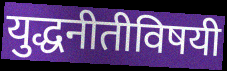
युद्धनीतीविषयी